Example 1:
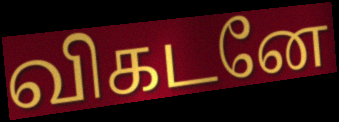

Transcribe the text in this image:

விகடனே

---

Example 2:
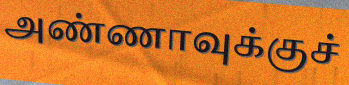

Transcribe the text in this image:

அண்ணாவுக்குச்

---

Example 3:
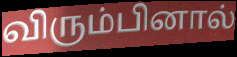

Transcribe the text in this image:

விரும்பினால்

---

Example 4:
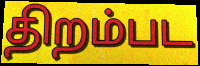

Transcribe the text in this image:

திறம்பட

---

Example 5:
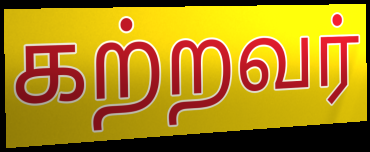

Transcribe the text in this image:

கற்றவர்